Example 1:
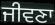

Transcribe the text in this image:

ਜੀਵਣਾ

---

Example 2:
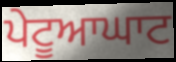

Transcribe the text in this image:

ਪੇਟੂਆਘਾਟ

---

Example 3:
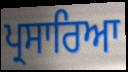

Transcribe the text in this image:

ਪ੍ਰਸਾਰਿਆ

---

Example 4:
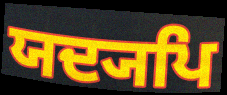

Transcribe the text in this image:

ਯਦ੍ਯਪਿ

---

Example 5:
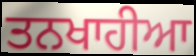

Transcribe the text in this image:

ਤਨਖਾਹੀਆ